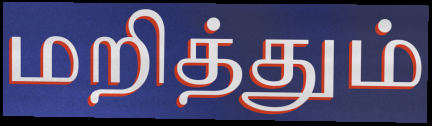
மறித்தும்